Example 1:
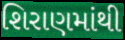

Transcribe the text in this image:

શિરાણમાંથી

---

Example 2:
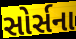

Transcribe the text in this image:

સોર્સના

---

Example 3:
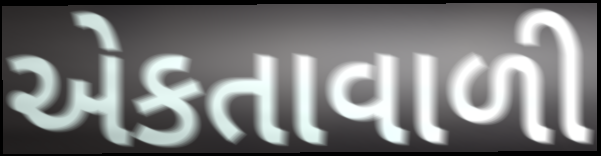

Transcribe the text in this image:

એકતાવાળી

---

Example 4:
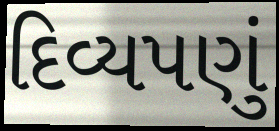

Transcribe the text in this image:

દિવ્યપણું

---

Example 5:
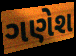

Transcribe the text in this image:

ગણેશ